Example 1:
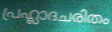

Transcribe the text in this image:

പ്രഹ്ലാദചരിതം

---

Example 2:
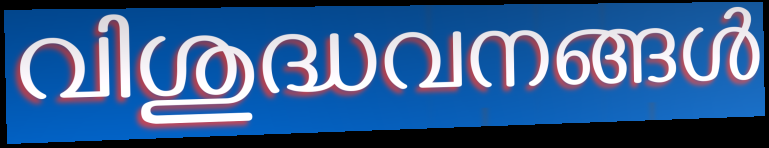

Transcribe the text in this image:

വിശുദ്ധവനങ്ങൾ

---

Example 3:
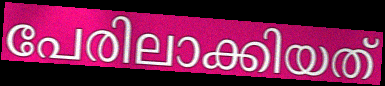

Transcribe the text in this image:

പേരിലാക്കിയത്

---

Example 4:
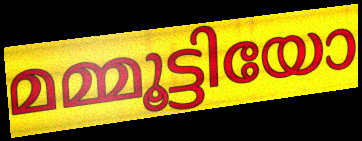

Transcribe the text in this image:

മമ്മൂട്ടിയോ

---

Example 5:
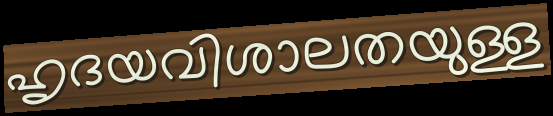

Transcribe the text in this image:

ഹൃദയവിശാലതയുള്ള